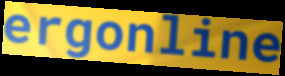
ergonline